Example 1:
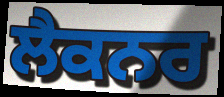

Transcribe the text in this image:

ਲੈਕਨਰ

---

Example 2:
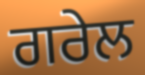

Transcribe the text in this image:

ਗਰੇਲ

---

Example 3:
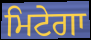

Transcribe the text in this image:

ਮਿਟੇਗਾ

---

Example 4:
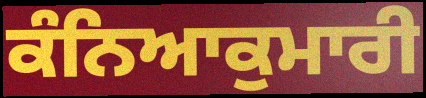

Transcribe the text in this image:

ਕੰਨਿਆਕੁਮਾਰੀ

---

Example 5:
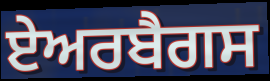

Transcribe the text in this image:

ਏਅਰਬੈਗਸ